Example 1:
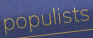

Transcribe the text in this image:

populists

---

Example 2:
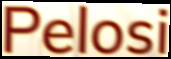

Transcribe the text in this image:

Pelosi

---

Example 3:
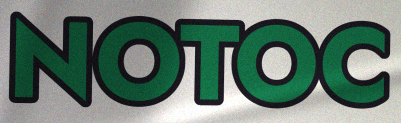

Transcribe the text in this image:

NOTOC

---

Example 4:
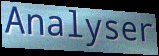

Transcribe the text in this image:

Analyser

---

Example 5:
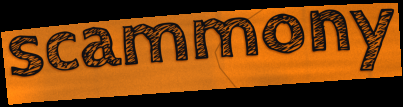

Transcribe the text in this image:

scammony